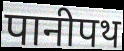
पानीपथ